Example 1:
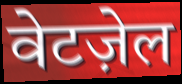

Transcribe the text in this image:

वेटज़ेल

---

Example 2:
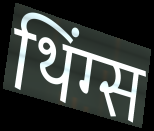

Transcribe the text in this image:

थिंग्स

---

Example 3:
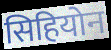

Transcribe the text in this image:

सिहियोन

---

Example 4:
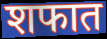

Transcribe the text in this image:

शफात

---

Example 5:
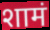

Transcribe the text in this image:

शामं